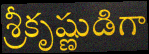
శ్రీకృష్ణుడిగా